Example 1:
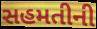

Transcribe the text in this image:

સહમતીની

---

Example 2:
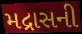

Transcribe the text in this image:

મદ્રાસની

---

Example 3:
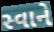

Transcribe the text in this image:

સ્વાને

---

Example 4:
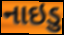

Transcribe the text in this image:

નાઇડુ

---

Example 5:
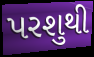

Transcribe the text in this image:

પરશુથી